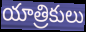
యాత్రికులు